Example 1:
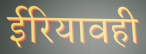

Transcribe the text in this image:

ईरियावही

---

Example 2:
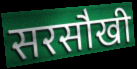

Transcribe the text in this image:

सरसौखी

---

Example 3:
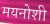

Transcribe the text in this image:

मयनोशी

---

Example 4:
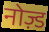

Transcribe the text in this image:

नोज़्ड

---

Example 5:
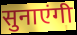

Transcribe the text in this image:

सुनाएंगी